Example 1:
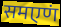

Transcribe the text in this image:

समएणं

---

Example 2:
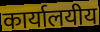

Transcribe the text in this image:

कार्यालयीय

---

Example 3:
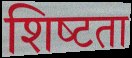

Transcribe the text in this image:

शिष्‍टता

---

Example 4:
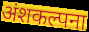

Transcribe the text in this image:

अंशकल्पना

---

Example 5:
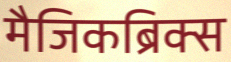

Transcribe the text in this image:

मैजिकब्रिक्स